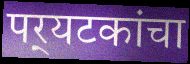
पर्यटकांचा